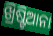
ଖ୍ରିଷ୍ଟିଆନା